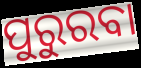
ପୁରୁରବା